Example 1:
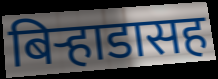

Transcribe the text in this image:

बिऱ्हाडासह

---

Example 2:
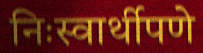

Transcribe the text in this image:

निःस्वार्थीपणे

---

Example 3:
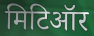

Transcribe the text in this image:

मिटिऑर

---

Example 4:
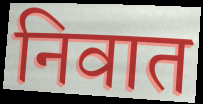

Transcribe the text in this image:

निवात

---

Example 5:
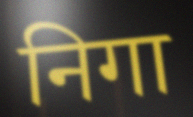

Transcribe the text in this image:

निगा